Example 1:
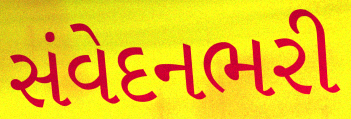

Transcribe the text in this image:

સંવેદનભરી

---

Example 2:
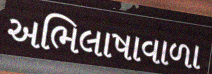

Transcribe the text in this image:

અભિલાષાવાળા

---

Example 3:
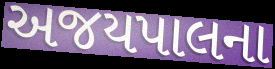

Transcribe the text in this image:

અજયપાલના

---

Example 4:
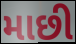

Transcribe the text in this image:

માછી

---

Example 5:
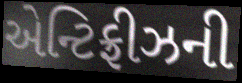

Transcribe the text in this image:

એન્ટિફ્રીઝની